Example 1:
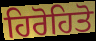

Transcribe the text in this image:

ਹਿਰੋਹਿਤੋ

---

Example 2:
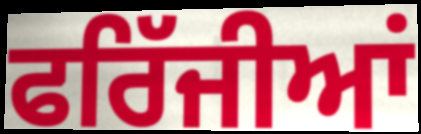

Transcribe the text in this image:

ਫਰਿੱਜੀਆਂ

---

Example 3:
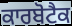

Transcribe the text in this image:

ਕਾਰਬੋਟੈਕ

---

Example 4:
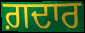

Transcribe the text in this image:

ਗ਼ਦਾਰ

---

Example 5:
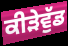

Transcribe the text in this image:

ਕੀੜੇਵੁੱਡ